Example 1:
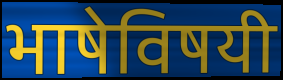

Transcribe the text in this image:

भाषेविषयी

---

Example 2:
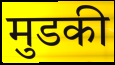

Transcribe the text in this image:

मुडकी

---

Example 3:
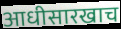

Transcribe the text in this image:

आधीसारखाच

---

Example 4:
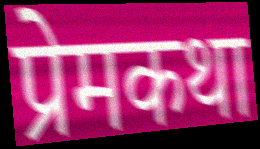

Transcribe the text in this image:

प्रेमकथा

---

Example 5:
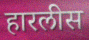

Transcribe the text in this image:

हारलीस